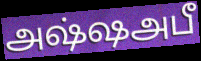
அஷ்ஷஅபீ